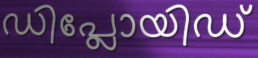
ഡിപ്ലോയിഡ്